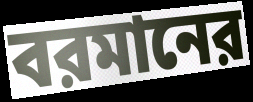
বরমানের